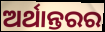
ଅର୍ଥାନ୍ତରର